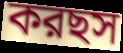
করছস